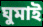
ঘুমাই